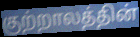
குற்றாலத்தின்